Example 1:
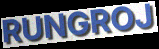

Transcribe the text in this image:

RUNGROJ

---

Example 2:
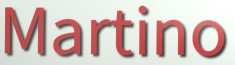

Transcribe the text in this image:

Martino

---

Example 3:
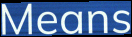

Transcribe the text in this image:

Means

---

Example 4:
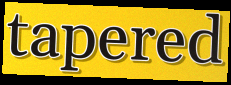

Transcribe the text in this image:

tapered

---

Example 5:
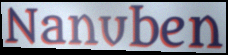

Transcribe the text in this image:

Nanuben